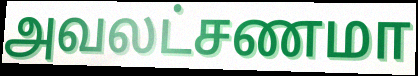
அவலட்சணமா